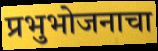
प्रभुभोजनाचा